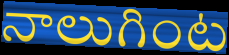
నాలుగింట